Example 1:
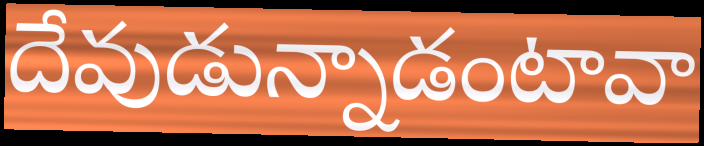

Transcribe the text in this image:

దేవుడున్నాడంటావా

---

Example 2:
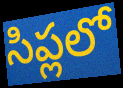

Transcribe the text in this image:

సిప్లలో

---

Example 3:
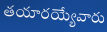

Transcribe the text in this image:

తయారయ్యేవారు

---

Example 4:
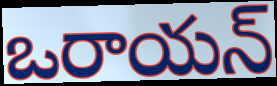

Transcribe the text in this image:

ఒరాయన్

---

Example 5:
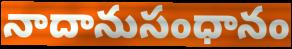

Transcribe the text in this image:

నాదానుసంధానం